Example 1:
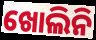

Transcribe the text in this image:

ଖୋଲିନି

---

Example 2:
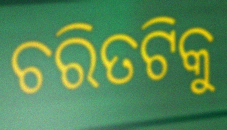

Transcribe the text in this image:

ଚରିତଟିକୁ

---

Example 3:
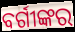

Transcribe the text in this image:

ବର୍ଗୀଙ୍କର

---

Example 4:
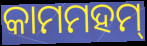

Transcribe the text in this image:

କାମମହମ୍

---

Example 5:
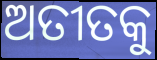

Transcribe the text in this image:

ଅତୀତକୁ